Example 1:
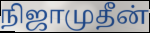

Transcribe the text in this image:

நிஜாமுதீன்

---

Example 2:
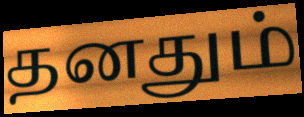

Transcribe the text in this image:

தனதும்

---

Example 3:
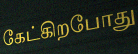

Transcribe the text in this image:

கேட்கிறபோது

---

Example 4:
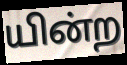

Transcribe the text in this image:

யின்ற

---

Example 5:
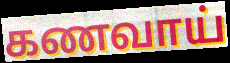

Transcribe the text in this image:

கணவாய்